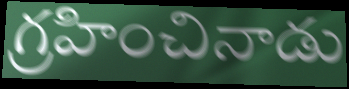
గ్రహించినాడు